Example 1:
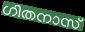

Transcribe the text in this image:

ഗിതനാസ്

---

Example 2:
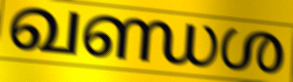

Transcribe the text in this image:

ഖണ്ഡശ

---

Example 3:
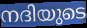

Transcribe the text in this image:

നദിയുടെ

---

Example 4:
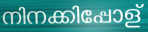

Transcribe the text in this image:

നിനക്കിപ്പോള്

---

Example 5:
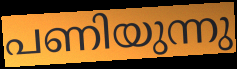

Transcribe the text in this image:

പണിയുന്നു